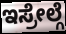
ಇಸ್ರೇಲ್ಗೆ